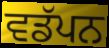
ਵਡੱਪਨ